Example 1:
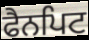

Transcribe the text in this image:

ਫੈਨਪਿਟ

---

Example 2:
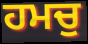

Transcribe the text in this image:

ਹਮਚੁ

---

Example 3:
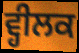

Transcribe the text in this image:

ਵ੍ਹੀਲਕ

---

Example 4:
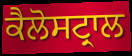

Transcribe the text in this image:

ਕੈਲੋਸਟ੍ਰਾਲ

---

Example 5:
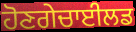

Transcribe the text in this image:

ਹੋਣਗੇਚਾਈਲਡ